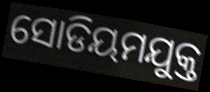
ସୋଡିୟମଯୁକ୍ତ